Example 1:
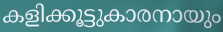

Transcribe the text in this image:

കളിക്കൂട്ടുകാരനായും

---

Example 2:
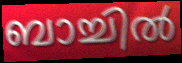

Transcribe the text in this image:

ബാച്ചിൽ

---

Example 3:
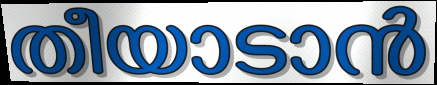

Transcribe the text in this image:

തീയാടാൻ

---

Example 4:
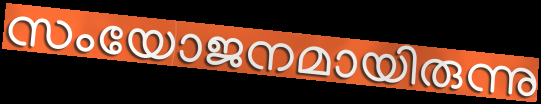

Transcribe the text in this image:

സംയോജനമായിരുന്നു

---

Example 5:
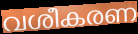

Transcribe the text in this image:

വശീകരണ